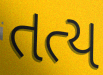
તત્ય